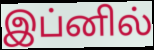
இப்னில்